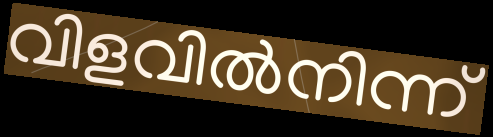
വിളവിൽനിന്ന്